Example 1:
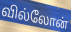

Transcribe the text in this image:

வில்லோன்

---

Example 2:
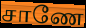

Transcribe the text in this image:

சாணே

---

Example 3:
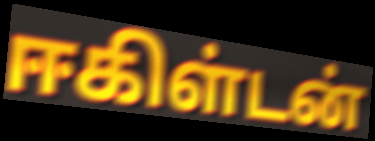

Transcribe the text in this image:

ஈகிள்டன்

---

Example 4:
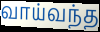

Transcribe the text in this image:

வாய்வந்த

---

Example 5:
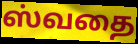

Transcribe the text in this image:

ஸ்வதை